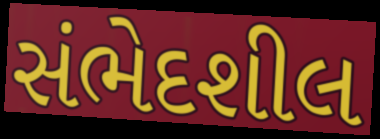
સંભેદશીલ